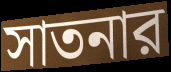
সাতনার